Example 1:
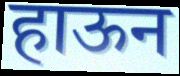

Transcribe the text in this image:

हाऊन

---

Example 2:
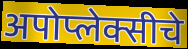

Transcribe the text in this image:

अपोप्लेक्सीचे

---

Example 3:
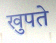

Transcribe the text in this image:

खुपते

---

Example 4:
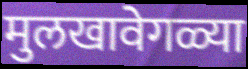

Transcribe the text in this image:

मुलखावेगळ्या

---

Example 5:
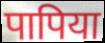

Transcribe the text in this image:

पापिया